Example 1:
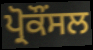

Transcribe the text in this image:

ਪ੍ਰੋਕੌਂਸਲ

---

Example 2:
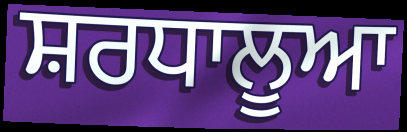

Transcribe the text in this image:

ਸ਼ਰਧਾਲੂਆ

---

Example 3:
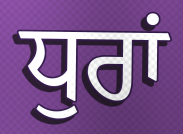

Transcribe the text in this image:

ਧੁਰਾਂ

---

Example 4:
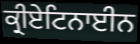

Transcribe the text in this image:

ਕ੍ਰੀਏਟਿਨਾਈਨ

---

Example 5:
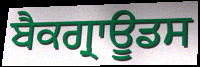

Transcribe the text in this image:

ਬੈਕਗ੍ਰਾਊਡਸ